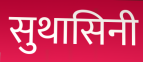
सुथासिनी